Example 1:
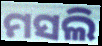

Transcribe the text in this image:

ମସଲି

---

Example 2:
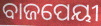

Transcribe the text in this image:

ବାଜପେୟୀ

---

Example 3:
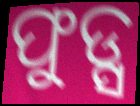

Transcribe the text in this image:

ଫୁଡ୍ସ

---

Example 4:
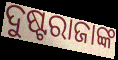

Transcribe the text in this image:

ଦୁଷ୍ଟରାଜାଙ୍କ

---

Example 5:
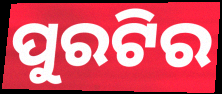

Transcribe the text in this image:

ପୁରଟିର